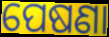
ପେଷଣା